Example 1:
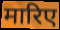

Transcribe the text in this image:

मारिए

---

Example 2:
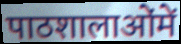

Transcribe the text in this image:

पाठशालाओंमें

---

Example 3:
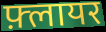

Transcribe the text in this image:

फ़्लायर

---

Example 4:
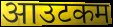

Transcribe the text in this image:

आउटकम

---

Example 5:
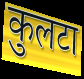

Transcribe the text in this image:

कुलटा